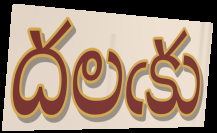
దలఁకు